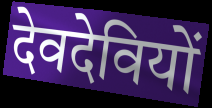
देवदेवियों